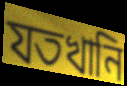
যতখানি